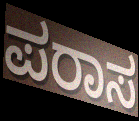
ಪರಾಸ